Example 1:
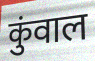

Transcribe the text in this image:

कुंवाल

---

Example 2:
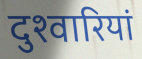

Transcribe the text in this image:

दुश्वारियां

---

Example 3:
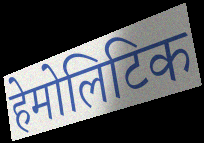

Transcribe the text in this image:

हेमोलिटिक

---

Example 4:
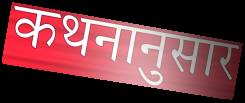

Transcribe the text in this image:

कथनानुसार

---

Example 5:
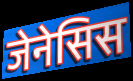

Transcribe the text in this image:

जेनेसिस